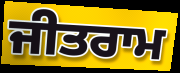
ਜੀਤਰਾਮ